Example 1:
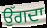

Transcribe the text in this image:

ਉੱਗਦਾ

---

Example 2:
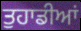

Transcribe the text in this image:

ਤੁਹਾਡੀਆਂ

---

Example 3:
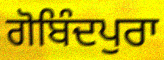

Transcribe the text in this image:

ਗੋਬਿੰਦਪੁਰਾ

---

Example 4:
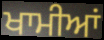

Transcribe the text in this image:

ਖਾਮੀਆਂ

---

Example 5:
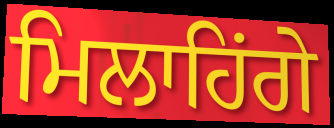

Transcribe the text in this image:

ਮਿਲਾਹਿਂਗੇ